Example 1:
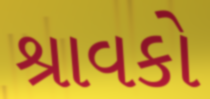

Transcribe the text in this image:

શ્રાવકો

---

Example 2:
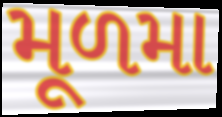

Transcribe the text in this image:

મૂળમા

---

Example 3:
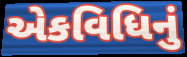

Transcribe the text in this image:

એકવિધિનું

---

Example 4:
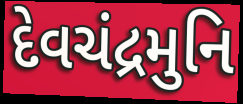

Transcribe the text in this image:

દેવચંદ્રમુનિ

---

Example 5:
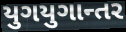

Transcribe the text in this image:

યુગયુગાન્તર